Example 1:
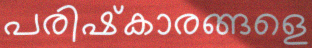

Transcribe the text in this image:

പരിഷ്‌കാരങ്ങളെ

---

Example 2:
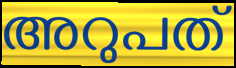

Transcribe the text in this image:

അറുപത്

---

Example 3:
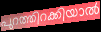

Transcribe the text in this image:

പുറത്തിറക്കിയാൽ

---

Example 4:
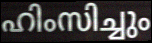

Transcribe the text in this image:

ഹിംസിച്ചും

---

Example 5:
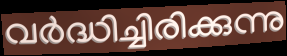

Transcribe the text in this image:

വർദ്ധിച്ചിരിക്കുന്നു